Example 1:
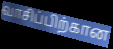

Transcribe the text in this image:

வாசிப்பிற்கான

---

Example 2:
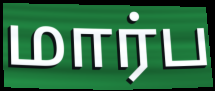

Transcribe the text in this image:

மார்ப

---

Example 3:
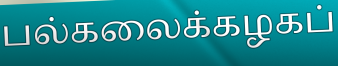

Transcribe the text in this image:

பல்கலைக்கழகப்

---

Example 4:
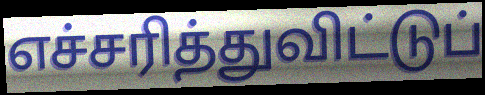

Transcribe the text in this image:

எச்சரித்துவிட்டுப்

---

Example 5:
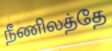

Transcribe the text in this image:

நீணிலத்தே